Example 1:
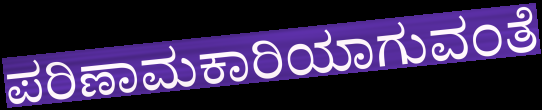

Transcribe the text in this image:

ಪರಿಣಾಮಕಾರಿಯಾಗುವಂತೆ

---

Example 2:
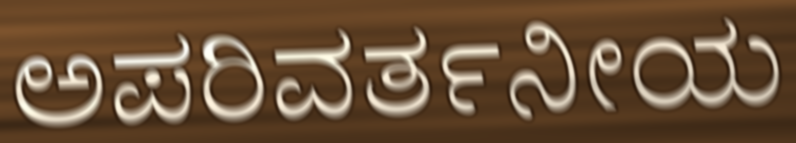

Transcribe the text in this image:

ಅಪರಿವರ್ತನೀಯ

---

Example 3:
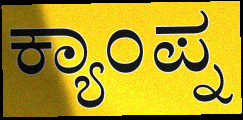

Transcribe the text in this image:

ಕ್ಯಾಂಪ್ನ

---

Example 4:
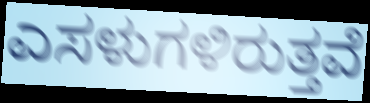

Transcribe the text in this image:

ಎಸಳುಗಳಿರುತ್ತವೆ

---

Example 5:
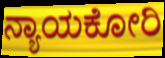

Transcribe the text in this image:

ನ್ಯಾಯಕೋರಿ